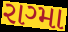
રાગ્મા